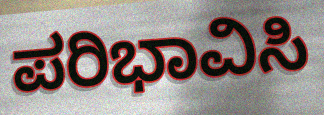
ಪರಿಭಾವಿಸಿ